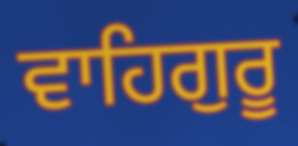
ਵਾਹਿਗੁਰੂ